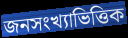
জনসংখ্যাভিত্তিক